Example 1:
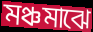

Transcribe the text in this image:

মঞ্চমাঝে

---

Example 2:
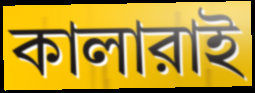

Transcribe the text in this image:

কালারাই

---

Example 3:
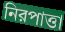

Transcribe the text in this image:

নিরপাত্তা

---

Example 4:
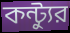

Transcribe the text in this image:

কন্ট্যুর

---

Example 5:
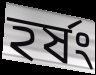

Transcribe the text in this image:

হর্ষং